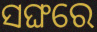
ସଙ୍ଘରେ